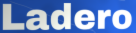
Ladero